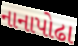
નાનાપોઢા